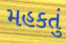
મહકતું